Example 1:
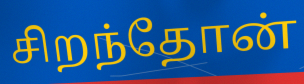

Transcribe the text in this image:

சிறந்தோன்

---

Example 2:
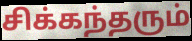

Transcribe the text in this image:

சிக்கந்தரும்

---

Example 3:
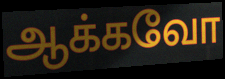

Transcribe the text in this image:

ஆக்கவோ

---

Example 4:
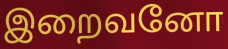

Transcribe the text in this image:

இறைவனோ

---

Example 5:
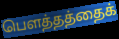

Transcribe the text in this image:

பௌத்தத்தைக்